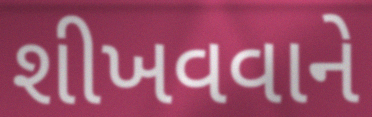
શીખવવાને